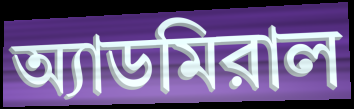
অ্যাডমিরাল